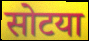
सोटया